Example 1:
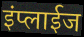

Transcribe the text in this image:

इंप्लाईज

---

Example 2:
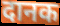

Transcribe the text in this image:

दानक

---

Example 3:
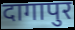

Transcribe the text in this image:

दागापुर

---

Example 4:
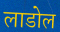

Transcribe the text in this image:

लाडोल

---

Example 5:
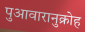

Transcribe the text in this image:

पुआवारानुक्रोह